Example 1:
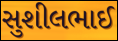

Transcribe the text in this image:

સુશીલભાઈ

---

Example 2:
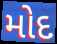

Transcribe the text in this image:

મોદ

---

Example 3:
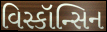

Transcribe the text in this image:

વિસ્કૉન્સિન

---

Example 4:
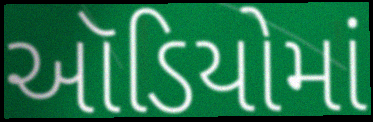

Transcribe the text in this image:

ઑડિયોમાં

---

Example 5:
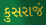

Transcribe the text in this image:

કુસરાજં